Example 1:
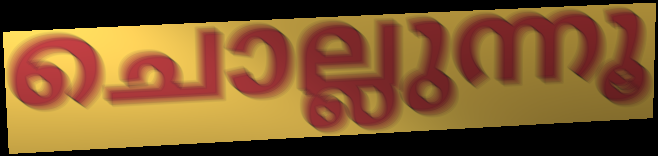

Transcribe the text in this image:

ചൊല്ലുന്നൂ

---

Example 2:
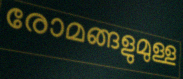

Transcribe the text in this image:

രോമങ്ങളുമുള്ള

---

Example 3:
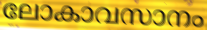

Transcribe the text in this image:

ലോകാവസാനം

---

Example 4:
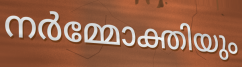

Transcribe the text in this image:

നർമ്മോക്തിയും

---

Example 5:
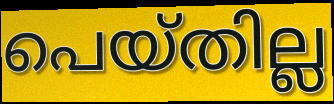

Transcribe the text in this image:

പെയ്തില്ല